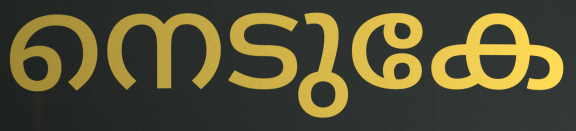
നെടുകേ